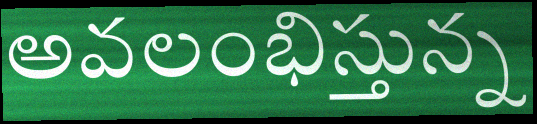
అవలంభిస్తున్న